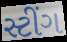
સ્ટીંગ